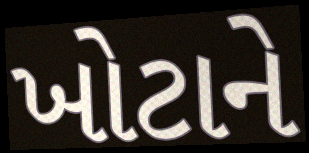
ખોટાને